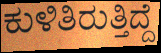
ಕುಳಿತಿರುತ್ತಿದ್ದೆ